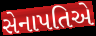
સેનાપતિએ